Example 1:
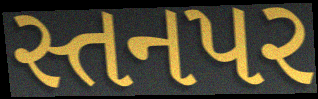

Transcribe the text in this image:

સ્તનપર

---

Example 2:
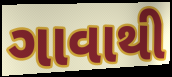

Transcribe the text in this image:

ગાવાથી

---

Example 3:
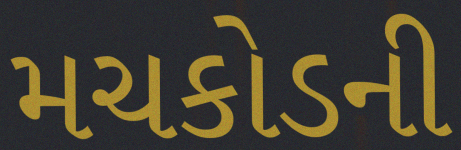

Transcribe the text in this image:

મચકોડની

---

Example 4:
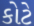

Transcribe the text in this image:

કોટે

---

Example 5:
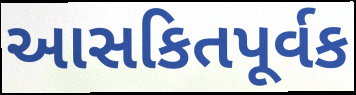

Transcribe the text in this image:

આસકિતપૂર્વક